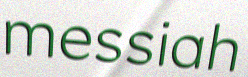
messiah